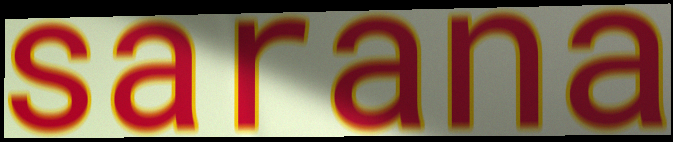
sarana